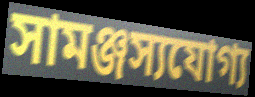
সামঞ্জস্যযোগ্য